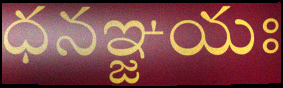
ధనఞ్జయః